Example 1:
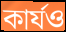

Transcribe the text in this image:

কাৰ্যও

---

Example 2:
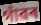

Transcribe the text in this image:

গাঁৱৰ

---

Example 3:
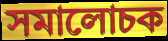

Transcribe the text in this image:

সমালোচক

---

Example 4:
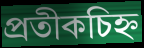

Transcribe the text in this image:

প্ৰতীকচিহ্ন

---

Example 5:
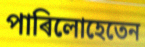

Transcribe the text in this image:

পাৰিলোহেতেন